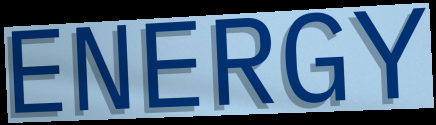
ENERGY